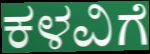
ಕಳವಿಗೆ